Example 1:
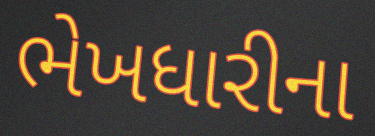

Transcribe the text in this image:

ભેખધારીના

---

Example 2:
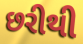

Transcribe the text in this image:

છરીથી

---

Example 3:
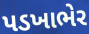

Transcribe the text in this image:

પડખાભેર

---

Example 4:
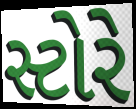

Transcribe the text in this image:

સ્ટોરે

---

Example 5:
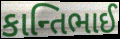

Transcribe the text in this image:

કાન્તિભાઈ